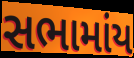
સભામાંય